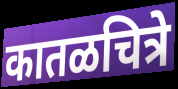
कातळचित्रे